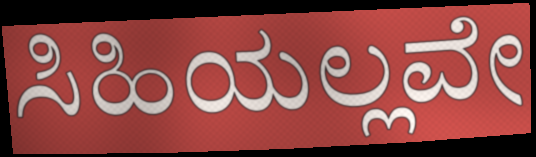
ಸಿಹಿಯಲ್ಲವೇ